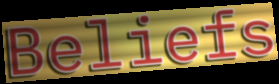
Beliefs